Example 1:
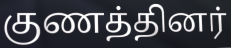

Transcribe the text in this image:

குணத்தினர்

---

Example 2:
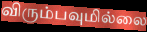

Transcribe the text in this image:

விரும்பவுமில்லை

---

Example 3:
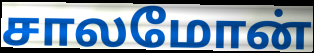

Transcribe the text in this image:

சாலமோன்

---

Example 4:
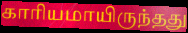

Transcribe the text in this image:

காரியமாயிருந்தது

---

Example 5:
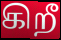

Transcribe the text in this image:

கிறீ